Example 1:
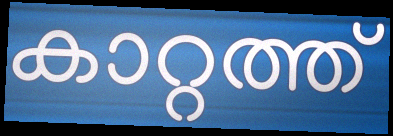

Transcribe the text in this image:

കാറ്റത്ത്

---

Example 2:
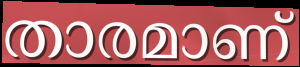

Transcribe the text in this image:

താരമാണ്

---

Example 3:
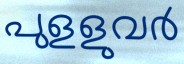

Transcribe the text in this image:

പുളളുവർ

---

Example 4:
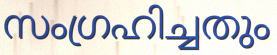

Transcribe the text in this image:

സംഗ്രഹിച്ചതും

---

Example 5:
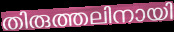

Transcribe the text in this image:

തിരുത്തലിനായി